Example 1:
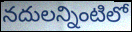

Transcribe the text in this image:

నదులన్నింటిలో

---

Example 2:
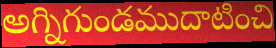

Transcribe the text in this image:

అగ్నిగుండముదాటించి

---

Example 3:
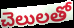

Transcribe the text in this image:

చెలులతో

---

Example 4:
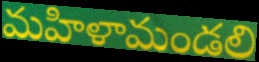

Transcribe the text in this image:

మహిళామండలి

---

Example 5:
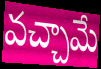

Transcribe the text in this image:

వచ్చామే